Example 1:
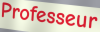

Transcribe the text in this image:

Professeur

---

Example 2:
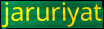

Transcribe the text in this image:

jaruriyat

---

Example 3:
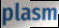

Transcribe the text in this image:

plasm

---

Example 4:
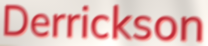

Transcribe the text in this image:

Derrickson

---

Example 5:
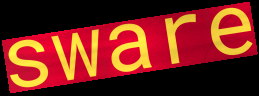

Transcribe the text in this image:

sware